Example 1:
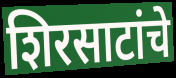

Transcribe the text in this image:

शिरसाटांचे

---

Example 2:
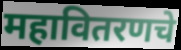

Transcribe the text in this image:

महावितरणचे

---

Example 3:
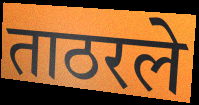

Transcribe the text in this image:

ताठरले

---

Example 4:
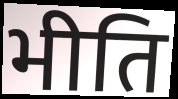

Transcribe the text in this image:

भीति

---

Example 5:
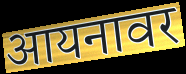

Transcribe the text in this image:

आयनावर